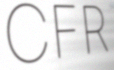
CFR